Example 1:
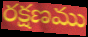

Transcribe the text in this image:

రక్షణము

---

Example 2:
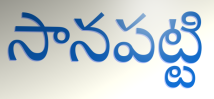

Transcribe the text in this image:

సానపట్టి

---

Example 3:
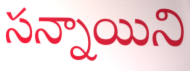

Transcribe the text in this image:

సన్నాయిని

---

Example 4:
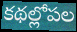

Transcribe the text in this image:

కథల్లోపల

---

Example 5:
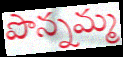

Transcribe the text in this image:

పొన్నమ్మ